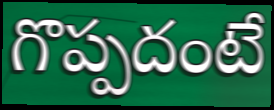
గొప్పదంటే